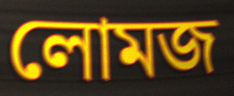
লোমজ